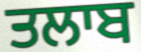
ਤਲਾਬ